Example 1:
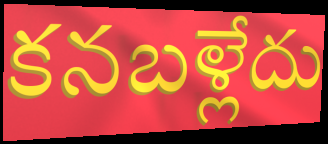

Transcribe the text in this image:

కనబళ్లేదు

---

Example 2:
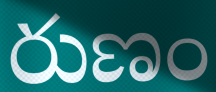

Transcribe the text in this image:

రుణం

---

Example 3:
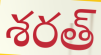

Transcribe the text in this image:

శరత్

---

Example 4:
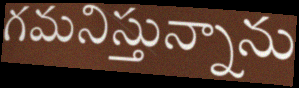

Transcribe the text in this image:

గమనిస్తున్నాను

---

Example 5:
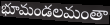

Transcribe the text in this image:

భూమండలమంతా